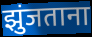
झुंजताना